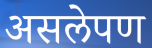
असलेपण